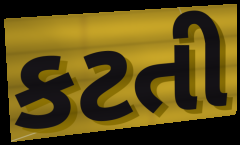
કટતી